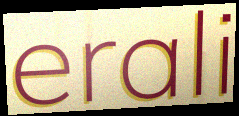
erali